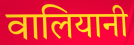
वालियानी